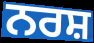
ਨਰਸ਼